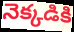
నెక్కడికి